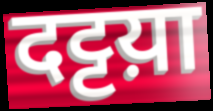
दट्टय़ा